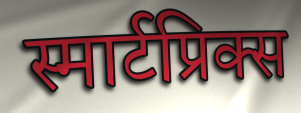
स्मार्टप्रिक्स